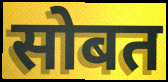
सोबत